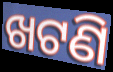
ଖଟଣି